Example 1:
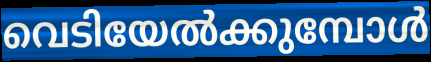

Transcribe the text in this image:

വെടിയേൽക്കുമ്പോൾ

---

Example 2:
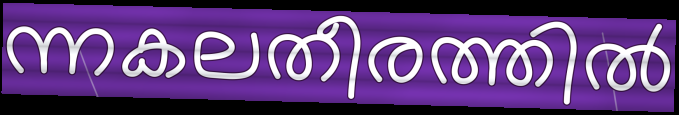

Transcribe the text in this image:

ന്നകലതീരത്തിൽ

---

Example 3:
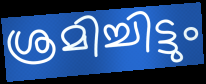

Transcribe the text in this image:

ശ്രമിച്ചിട്ടും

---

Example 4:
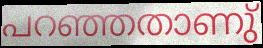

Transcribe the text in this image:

പറഞ്ഞതാണു്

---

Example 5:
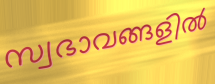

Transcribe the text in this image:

സ്വഭാവങ്ങളിൽ